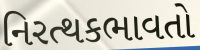
નિરત્થકભાવતો